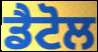
ਡੈਟੋਲ